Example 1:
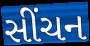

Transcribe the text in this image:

સીંચન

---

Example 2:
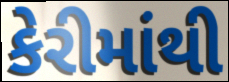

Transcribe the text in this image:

કેરીમાંથી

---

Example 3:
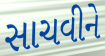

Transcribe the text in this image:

સાચવીને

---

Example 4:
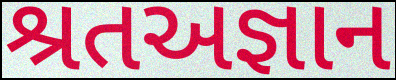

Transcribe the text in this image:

શ્રતઅજ્ઞાન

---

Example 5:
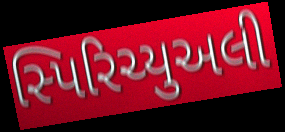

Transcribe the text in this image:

સ્પિરિચ્યુઅલી